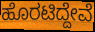
ಹೊರಟಿದ್ದೇವೆ